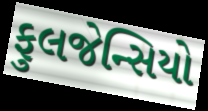
ફુલજેન્સિયો